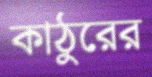
কাঠুরের